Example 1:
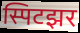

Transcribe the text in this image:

स्पिटझर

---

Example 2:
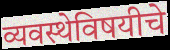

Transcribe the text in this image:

व्यवस्थेविषयीचे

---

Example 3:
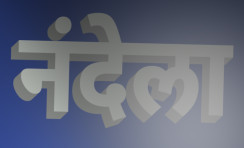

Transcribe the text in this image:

नंदेला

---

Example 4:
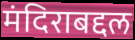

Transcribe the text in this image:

मंदिराबद्दल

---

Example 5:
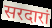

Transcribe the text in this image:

सरदारां